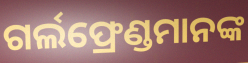
ଗର୍ଲଫ୍ରେଣ୍ଡମାନଙ୍କ